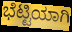
ಭೆಟ್ಟಿಯಾಗಿ